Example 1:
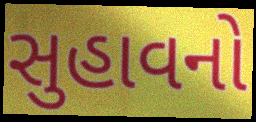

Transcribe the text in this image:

સુહાવનો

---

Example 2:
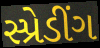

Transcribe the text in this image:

સ્પ્રેડીંગ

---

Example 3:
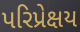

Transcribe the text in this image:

પરિપ્રેક્ષય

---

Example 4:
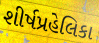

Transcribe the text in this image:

શીર્ષપ્રહેલિકા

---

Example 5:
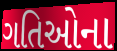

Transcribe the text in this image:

ગતિઓના